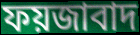
ফয়জাবাদ